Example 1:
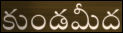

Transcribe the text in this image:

కుండమీద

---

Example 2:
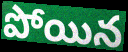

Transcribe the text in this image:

పోయిన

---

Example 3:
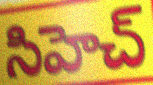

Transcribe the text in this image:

సిహెచ్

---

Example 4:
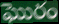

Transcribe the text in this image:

ఘొరం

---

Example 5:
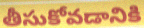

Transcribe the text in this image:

తీసుకోవడానికి